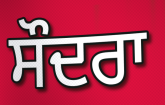
ਸੌਦਰਾ